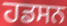
ਹਡਸਨ